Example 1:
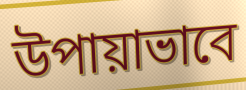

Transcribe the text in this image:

উপায়াভাবে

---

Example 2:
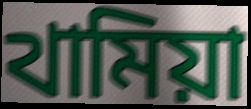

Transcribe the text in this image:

থামিয়া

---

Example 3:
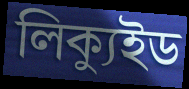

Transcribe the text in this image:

লিক্যুইড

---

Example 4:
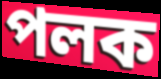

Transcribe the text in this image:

পলক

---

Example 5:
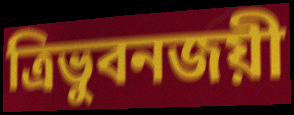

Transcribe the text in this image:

ত্রিভুবনজয়ী